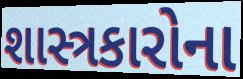
શાસ્ત્રકારોના